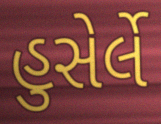
હુસેર્લે